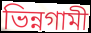
ভিন্নগামী